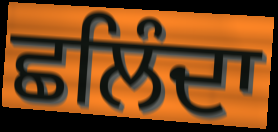
ਛਲਿੰਦਾ